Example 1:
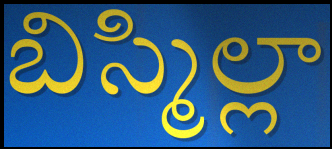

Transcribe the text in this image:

బిస్మిల్లా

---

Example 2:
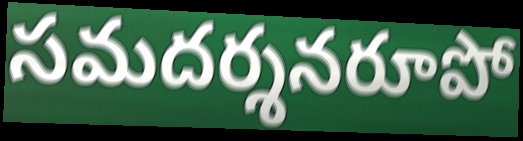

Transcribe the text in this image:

సమదర్శనరూపో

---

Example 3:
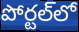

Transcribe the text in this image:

పోర్టల్‌లో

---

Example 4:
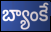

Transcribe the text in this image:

బ్యాంకే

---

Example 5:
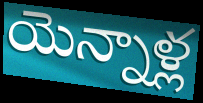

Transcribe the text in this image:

యెన్నాళ్ల